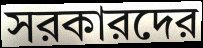
সরকারদের